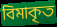
বিমাকৃত